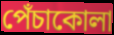
পেঁচাকোলা